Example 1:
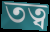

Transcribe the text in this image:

তত্ব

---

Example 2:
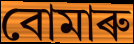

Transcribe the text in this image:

বোমাৰু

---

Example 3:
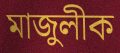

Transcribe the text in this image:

মাজুলীক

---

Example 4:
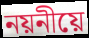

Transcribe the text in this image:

নয়নীয়ে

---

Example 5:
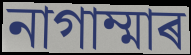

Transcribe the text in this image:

নাগাম্মাৰ